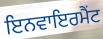
ਇਨਵਾਇਰਮੈਂਟ